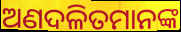
ଅଣଦଳିତମାନଙ୍କ